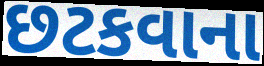
છટકવાના